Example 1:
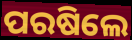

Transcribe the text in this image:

ପରଷିଲେ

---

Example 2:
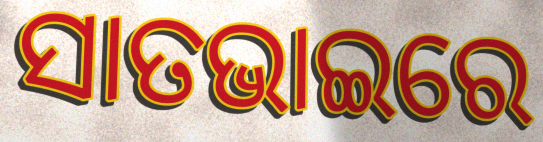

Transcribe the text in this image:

ସାତଭାଇରେ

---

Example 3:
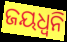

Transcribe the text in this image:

ଜୟଧ୍ୱନି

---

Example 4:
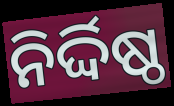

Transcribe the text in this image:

ନିର୍ଦ୍ଦିଷ୍ଠ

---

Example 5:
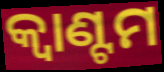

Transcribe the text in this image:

କ୍ୱାଣ୍ଟମ